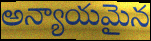
అన్యాయమైన